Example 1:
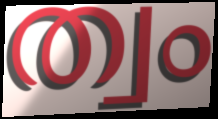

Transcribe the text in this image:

ത്വം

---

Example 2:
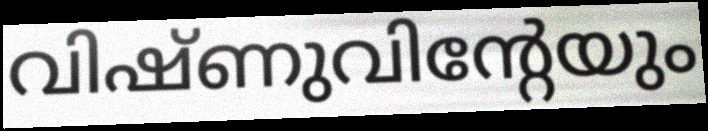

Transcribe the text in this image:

വിഷ്ണുവിന്റേയും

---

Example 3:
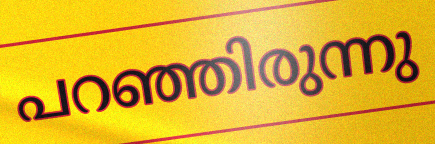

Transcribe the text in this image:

പറഞ്ഞിരുന്നു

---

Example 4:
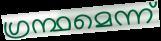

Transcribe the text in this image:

ഗ്രന്ഥമെന്ന്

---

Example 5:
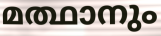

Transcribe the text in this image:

മത്ഥാനും